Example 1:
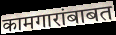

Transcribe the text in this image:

कामगारांबाबत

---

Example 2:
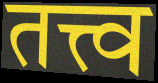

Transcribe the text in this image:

तत्त्व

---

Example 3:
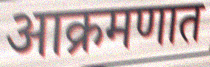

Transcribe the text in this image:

आक्रमणात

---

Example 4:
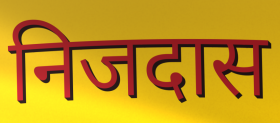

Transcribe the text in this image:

निजदास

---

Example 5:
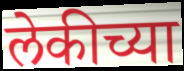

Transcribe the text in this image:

लेकीच्या